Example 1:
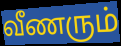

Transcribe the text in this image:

வீணரும்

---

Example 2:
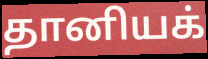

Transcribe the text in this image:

தானியக்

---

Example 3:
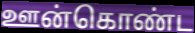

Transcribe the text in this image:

ஊன்கொண்ட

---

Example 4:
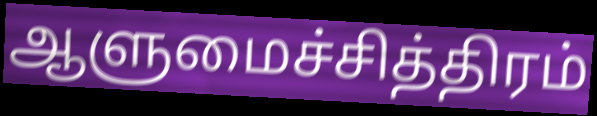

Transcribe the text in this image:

ஆளுமைச்சித்திரம்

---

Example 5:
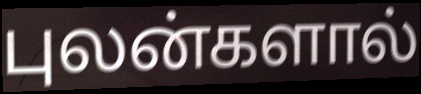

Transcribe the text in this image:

புலன்களால்